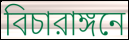
বিচারাঙ্গনে